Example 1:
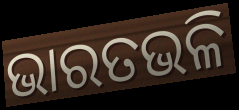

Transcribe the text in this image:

ଭାରତଭଳି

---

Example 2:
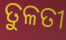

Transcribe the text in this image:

ତୁଳତୀ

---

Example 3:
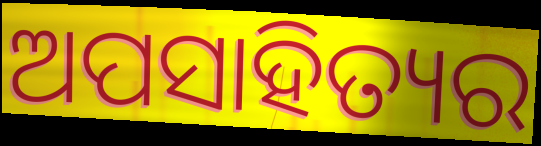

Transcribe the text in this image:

ଅପସାହିତ୍ୟର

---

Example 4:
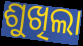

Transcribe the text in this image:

ଶୁଖିଲା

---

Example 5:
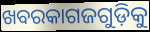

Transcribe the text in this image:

ଖବରକାଗଜଗୁଡ଼ିକୁ